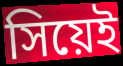
সিয়েই